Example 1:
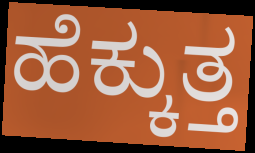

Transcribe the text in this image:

ಹೆಕ್ಕುತ್ತ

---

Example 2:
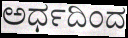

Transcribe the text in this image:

ಅರ್ಧದಿಂದ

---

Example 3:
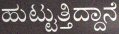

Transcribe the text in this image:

ಹುಟ್ಟುತ್ತಿದ್ದಾನೆ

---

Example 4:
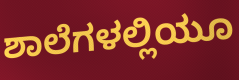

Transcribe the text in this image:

ಶಾಲೆಗಳಲ್ಲಿಯೂ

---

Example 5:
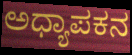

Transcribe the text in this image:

ಅಧ್ಯಾಪಕನ